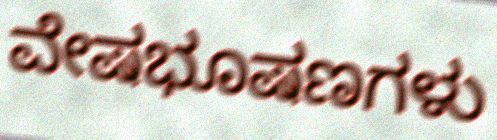
ವೇಷಭೂಷಣಗಳು